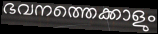
ഭവനത്തെക്കാളും